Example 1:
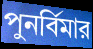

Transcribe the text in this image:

পুনর্বিমার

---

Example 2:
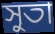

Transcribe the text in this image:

সুতা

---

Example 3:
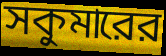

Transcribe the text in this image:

সকুমারের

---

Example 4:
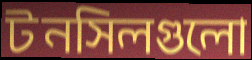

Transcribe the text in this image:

টনসিলগুলো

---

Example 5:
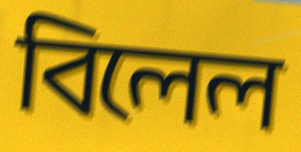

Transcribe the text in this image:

বিলেল